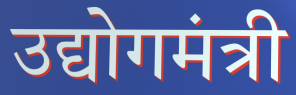
उद्योगमंत्री